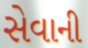
સેવાની